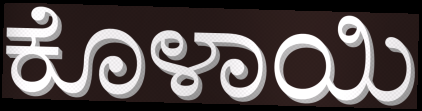
ಕೊಳಾಯಿ